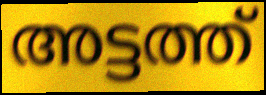
അട്ടത്ത്